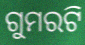
ଗୁମରଟି